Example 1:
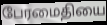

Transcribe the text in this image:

பேரமைதியை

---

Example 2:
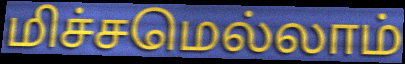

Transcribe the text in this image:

மிச்சமெல்லாம்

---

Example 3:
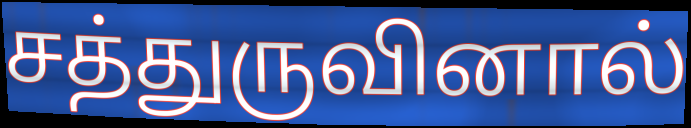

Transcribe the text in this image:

சத்துருவினால்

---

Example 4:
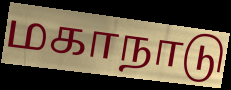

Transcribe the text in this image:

மகாநாடு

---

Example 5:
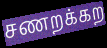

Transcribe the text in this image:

சணறக்கற